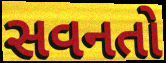
સવનતો